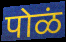
पोळं